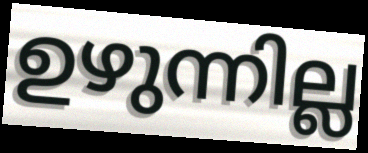
ഉഴുന്നില്ല